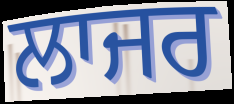
ਲਾਜਰ